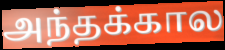
அந்தக்கால